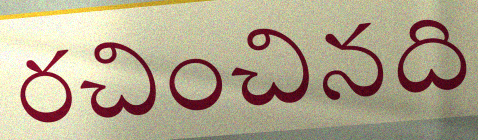
రచించినది